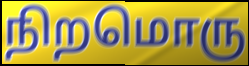
நிறமொரு